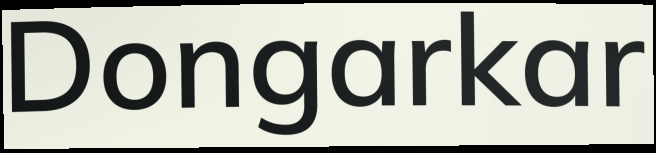
Dongarkar